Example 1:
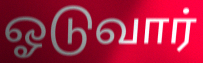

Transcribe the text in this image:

ஓடுவார்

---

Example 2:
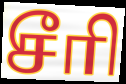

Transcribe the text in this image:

சீரி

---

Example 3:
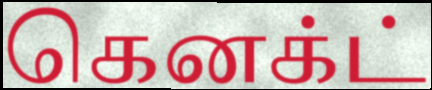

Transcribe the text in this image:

கெனக்ட்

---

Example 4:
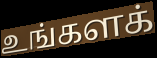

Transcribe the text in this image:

உங்களக்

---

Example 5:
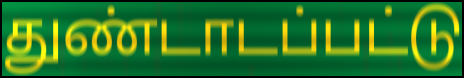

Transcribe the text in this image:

துண்டாடப்பட்டு